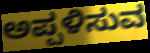
ಅಪ್ಪಳಿಸುವ